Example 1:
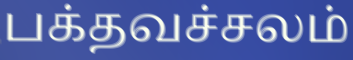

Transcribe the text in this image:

பக்தவச்சலம்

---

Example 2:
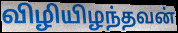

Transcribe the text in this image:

விழியிழந்தவன்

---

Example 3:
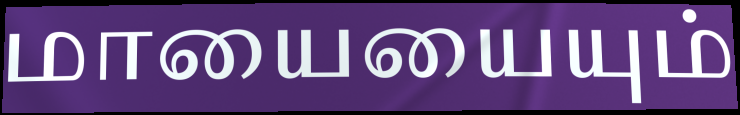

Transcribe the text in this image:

மாயையையும்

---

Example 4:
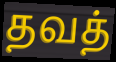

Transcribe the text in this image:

தவத்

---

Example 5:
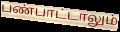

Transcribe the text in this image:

பண்பாட்டாலும்